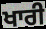
ਖਾਰੀ